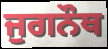
ਜੁਗਨੌਥ